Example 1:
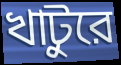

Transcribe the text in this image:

খাটুরে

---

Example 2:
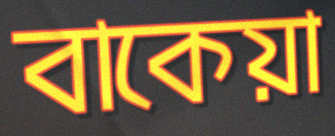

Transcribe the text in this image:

বাকেয়া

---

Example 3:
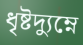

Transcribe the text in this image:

ধৃষ্টদ্যুম্নে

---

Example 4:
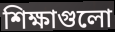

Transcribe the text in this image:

শিক্ষাগুলো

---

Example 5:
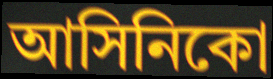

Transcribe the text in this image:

আসিনিকো